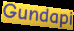
Gundapi